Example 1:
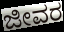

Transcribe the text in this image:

ಜೀವರ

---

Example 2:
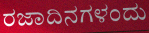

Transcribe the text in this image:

ರಜಾದಿನಗಳಂದು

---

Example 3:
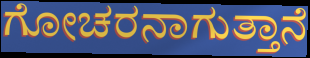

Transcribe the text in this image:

ಗೋಚರನಾಗುತ್ತಾನೆ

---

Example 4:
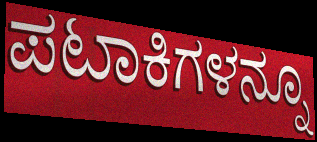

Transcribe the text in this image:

ಪಟಾಕಿಗಳನ್ನೂ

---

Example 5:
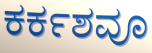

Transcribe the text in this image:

ಕರ್ಕಶವೂ